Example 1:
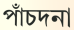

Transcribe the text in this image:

পাঁচদনা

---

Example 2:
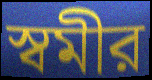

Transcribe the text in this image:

স্বমীর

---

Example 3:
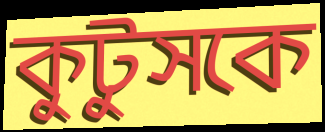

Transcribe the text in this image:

কুটুসকে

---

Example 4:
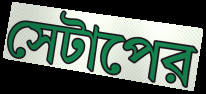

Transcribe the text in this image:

সেটাপের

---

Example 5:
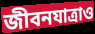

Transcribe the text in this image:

জীবনযাত্রাও